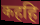
कहहि